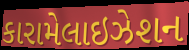
કારામેલાઇઝેશન